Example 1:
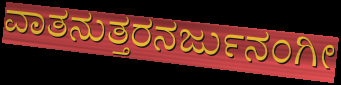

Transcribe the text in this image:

ವಾತನುತ್ತರನರ್ಜುನಂಗೀ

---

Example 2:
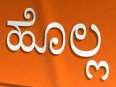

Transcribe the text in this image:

ಹೊಲ್ಲ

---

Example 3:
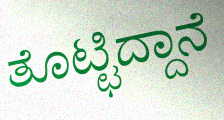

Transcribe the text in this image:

ತೊಟ್ಟಿದ್ದಾನೆ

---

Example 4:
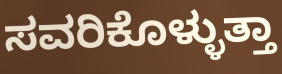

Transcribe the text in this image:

ಸವರಿಕೊಳ್ಳುತ್ತಾ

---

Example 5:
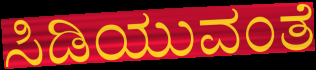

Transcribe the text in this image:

ಸಿಡಿಯುವಂತೆ